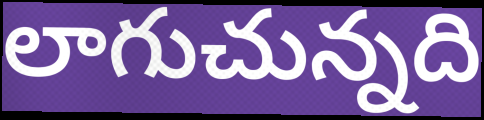
లాగుచున్నది